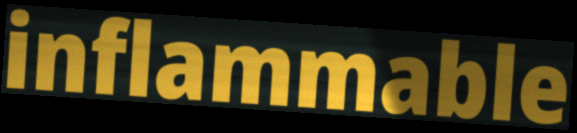
inflammable